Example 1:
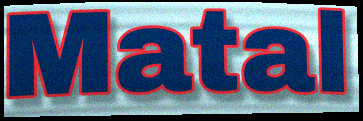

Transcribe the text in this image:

Matal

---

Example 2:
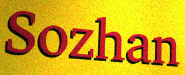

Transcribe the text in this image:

Sozhan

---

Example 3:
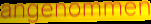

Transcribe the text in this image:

angenommen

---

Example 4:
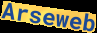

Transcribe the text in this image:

Arseweb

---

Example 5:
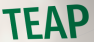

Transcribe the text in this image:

TEAP